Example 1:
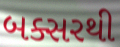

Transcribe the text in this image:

બક્સરથી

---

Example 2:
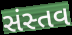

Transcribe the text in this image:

સંસ્તવ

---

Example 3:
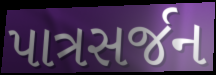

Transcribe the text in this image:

પાત્રસર્જન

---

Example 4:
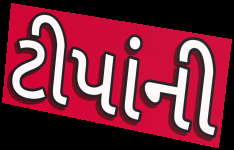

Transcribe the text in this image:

ટીપાંની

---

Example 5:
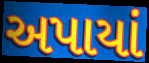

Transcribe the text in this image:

અપાયાં